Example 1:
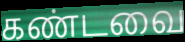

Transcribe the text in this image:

கண்டவை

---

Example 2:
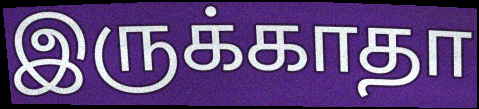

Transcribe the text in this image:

இருக்காதா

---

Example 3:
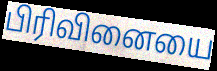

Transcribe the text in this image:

பிரிவினையை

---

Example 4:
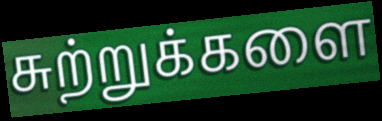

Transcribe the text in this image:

சுற்றுக்களை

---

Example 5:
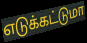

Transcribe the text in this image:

எடுக்கட்டுமா